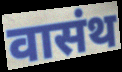
वासंथ